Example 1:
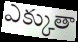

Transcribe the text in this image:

ఎక్కుతా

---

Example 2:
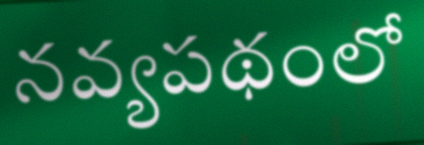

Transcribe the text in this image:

నవ్యపథంలో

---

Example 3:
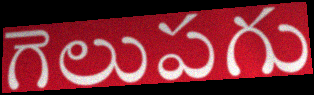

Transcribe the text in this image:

గెలుపగు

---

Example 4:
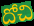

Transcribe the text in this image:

దోచి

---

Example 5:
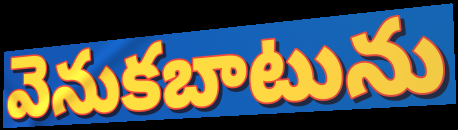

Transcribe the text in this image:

వెనుకబాటును